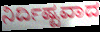
ನಿರ್ದಿಷ್ಟವಾದ